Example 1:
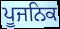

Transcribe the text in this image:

ਪੂਜਨਿਕ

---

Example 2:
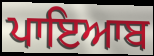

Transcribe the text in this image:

ਪਾਇਆਬ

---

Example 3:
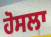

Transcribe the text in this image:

ਹੋਸਲਾ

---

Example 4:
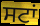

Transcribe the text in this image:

ਸਟਾਂ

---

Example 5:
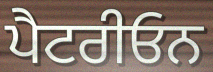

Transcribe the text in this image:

ਪੈਟਰੀਓਨ